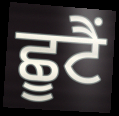
ਛੂਟੈਂ